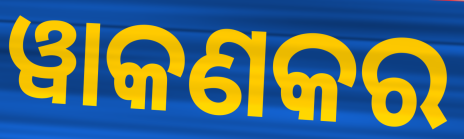
ୱାକଣକର